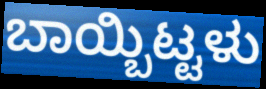
ಬಾಯ್ಬಿಟ್ಟಳು